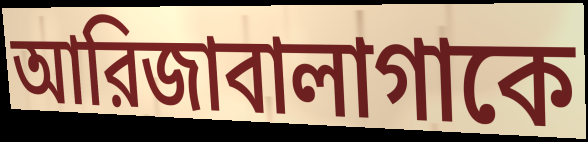
আরিজাবালাগাকে